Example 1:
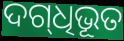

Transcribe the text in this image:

ଦଗ୍‍ଧିଭୂତ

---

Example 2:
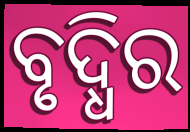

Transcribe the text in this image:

ବୃଦ୍ଧିର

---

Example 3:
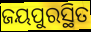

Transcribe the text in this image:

ଜୟପୁରସ୍ଥିତ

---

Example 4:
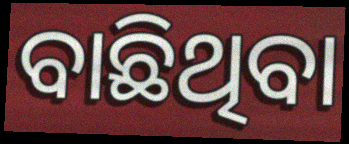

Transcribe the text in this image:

ବାଛିଥିବା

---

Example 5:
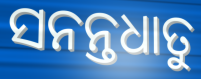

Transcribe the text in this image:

ସନନ୍ତଧାତୁ